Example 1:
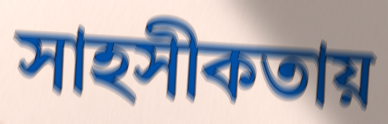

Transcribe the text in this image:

সাহসীকতায়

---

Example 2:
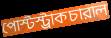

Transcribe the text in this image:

পোস্টস্ট্রাকচারাল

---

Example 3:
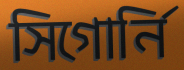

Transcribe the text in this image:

সিগোর্নি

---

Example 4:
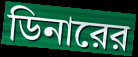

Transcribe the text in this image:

ডিনারের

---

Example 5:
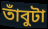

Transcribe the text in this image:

তাঁবুটা